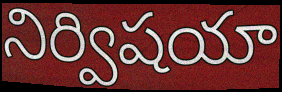
నిర్విషయా